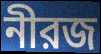
নীরজ